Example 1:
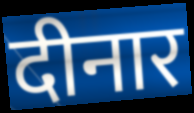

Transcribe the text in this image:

दीनार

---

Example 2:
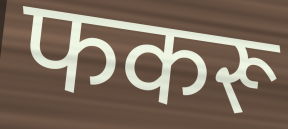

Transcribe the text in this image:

फकरू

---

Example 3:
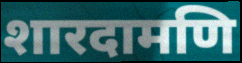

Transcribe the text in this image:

शारदामणि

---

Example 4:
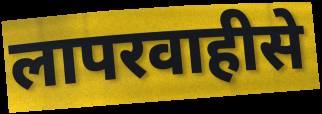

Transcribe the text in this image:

लापरवाहीसे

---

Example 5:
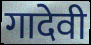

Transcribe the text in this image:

गादेवी